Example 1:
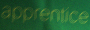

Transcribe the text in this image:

apprentice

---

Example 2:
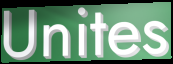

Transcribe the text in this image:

Unites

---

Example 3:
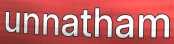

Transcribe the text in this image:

unnatham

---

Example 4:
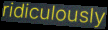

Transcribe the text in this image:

ridiculously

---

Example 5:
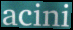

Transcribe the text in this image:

acini